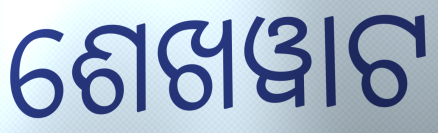
ଶେଖୱାଟ